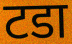
टडा